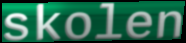
skolen